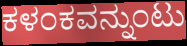
ಕಳಂಕವನ್ನುಂಟು